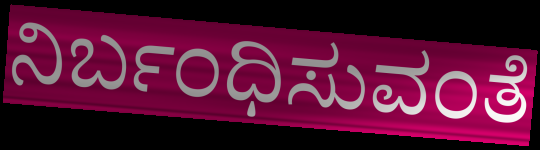
ನಿರ್ಬಂಧಿಸುವಂತೆ